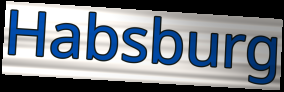
Habsburg